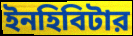
ইনহিবিটার